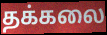
தக்கலை